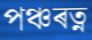
পঞ্চৰত্ন